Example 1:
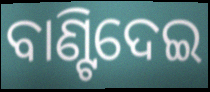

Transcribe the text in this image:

ବାଣ୍ଟିଦେଇ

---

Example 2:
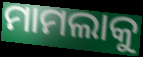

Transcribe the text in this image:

ମାମଲାକୁ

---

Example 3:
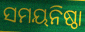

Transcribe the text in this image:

ସମୟନିଷ୍ଠା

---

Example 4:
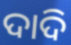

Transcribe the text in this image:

ଦାଦି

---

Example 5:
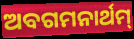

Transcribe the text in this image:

ଅବଗମନାର୍ଥମ୍